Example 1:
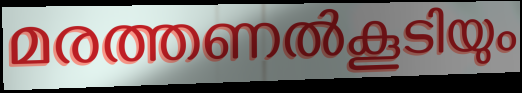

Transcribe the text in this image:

മരത്തണൽകൂടിയും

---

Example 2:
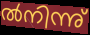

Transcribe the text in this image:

ൽനിന്നു്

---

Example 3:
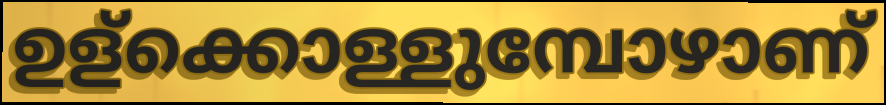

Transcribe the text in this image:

ഉള്ക്കൊള്ളുമ്പോഴാണ്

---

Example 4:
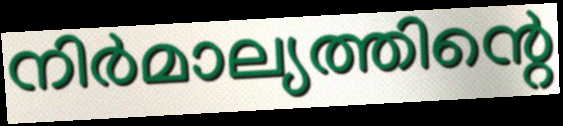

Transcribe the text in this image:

നിർമാല്യത്തിന്റെ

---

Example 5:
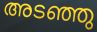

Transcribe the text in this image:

അടഞ്ഞു